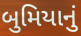
બુમિયાનું